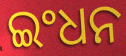
ଇଂଧନ